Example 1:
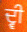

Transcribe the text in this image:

ਦ੍ਵੀ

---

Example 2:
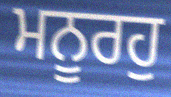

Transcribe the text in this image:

ਮਨੂਰਹੁ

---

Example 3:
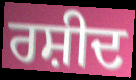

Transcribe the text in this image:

ਰਸ਼ੀਦ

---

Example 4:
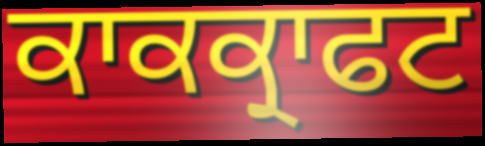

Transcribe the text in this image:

ਕਾਕਕ੍ਰਾਫਟ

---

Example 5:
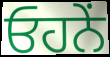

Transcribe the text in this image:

ਓਹਨੇੰ